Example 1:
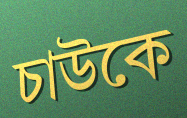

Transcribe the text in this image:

চাউকে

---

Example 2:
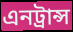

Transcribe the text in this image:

এনট্রান্স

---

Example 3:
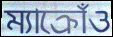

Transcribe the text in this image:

ম্যাক্রোঁও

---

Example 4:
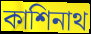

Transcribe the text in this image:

কাশিনাথ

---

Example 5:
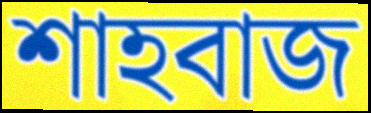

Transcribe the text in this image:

শাহবাজ